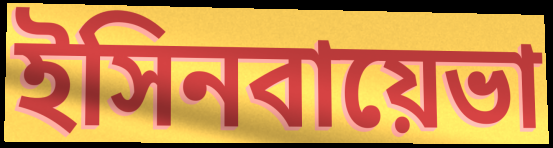
ইসিনবায়েভা